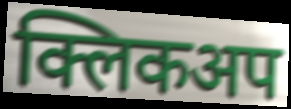
क्लिकअप